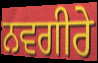
ਨਵਗੀਰੇ